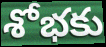
శోభకు